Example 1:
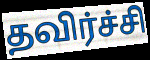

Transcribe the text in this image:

தவிர்ச்சி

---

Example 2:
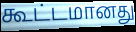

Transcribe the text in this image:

கூட்டமானது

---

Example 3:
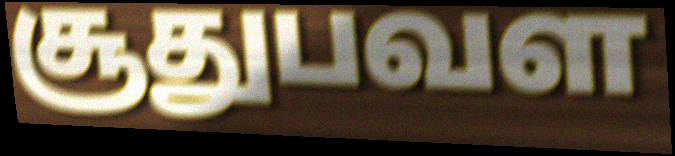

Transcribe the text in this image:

சூதுபவள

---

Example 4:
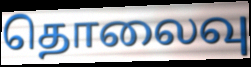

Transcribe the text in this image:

தொலைவு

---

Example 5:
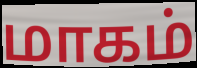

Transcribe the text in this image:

மாகம்